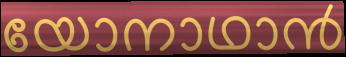
യോനാഥാൻ